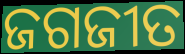
ଜଗଜୀତ